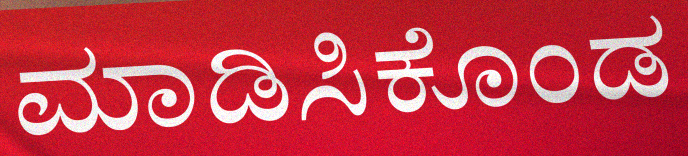
ಮಾಡಿಸಿಕೊಂಡ